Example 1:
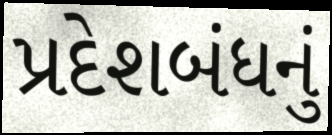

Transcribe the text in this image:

પ્રદેશબંધનું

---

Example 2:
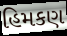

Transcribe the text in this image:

હિમકણ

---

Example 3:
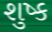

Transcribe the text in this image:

શુષ્ક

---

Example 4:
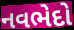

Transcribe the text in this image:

નવભેદો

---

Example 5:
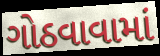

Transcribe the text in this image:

ગોઠવાવામાં